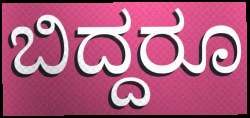
ಬಿದ್ದರೂ